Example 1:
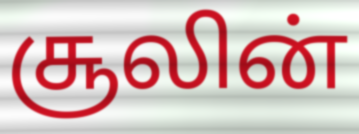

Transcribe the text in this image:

சூலின்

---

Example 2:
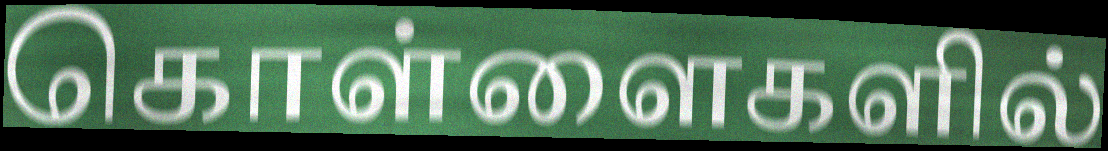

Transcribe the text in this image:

கொள்ளைகளில்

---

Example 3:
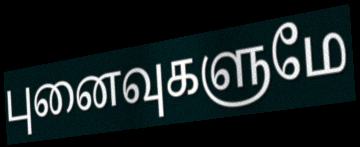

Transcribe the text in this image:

புனைவுகளுமே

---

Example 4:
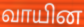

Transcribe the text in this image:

வாயின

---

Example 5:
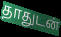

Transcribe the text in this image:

தாதுடன்